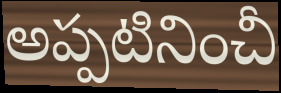
అప్పటినించీ